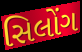
સિલોંગ